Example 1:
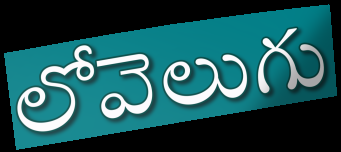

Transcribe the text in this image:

లోవెలుగు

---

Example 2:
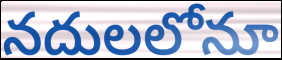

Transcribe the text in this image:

నదులలోనూ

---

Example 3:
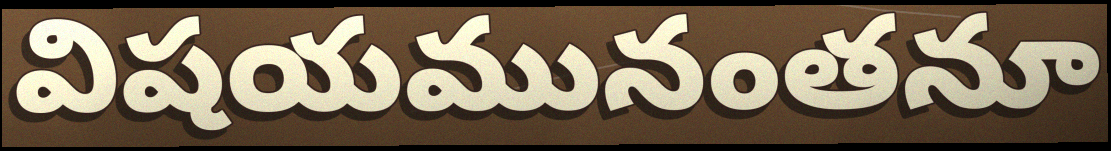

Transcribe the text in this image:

విషయమునంతనూ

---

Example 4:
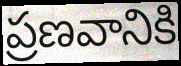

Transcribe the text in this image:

ప్రణవానికి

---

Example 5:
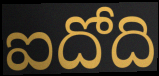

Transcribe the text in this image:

ఐదోది